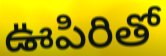
ఊపిరితో